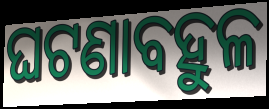
ଘଟଣାବହୁଳ